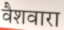
वैशवारा